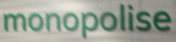
monopolise